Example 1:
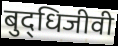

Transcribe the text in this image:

बुद्धिजीवी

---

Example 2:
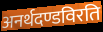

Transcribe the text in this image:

अनर्थदण्डविरति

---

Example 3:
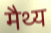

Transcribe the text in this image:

मैथ्य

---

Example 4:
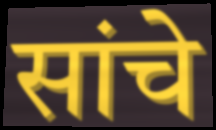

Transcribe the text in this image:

सांचे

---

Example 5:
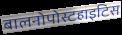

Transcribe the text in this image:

बालनोपोस्टहाइटिस